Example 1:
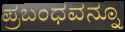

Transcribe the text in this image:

ಪ್ರಬಂಧವನ್ನೂ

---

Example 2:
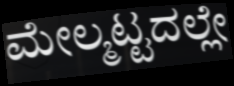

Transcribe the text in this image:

ಮೇಲ್ಮಟ್ಟದಲ್ಲೇ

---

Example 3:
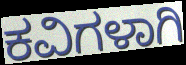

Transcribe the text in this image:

ಕವಿಗಳಾಗಿ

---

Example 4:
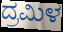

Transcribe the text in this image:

ದ್ರಮಿಳ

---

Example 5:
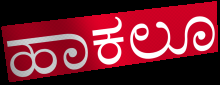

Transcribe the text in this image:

ಹಾಕಲೂ